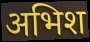
अभिश